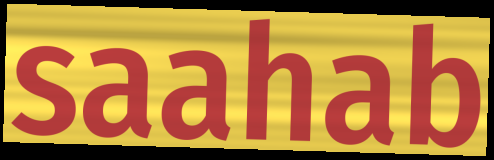
saahab